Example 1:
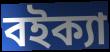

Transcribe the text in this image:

বইক্যা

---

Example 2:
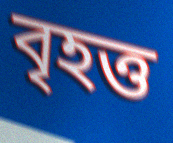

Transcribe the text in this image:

বৃহত্ত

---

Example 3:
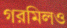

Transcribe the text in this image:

গরমিলও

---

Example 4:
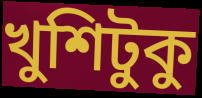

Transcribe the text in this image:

খুশিটুকু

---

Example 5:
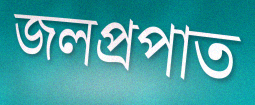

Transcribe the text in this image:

জলপ্রপাত